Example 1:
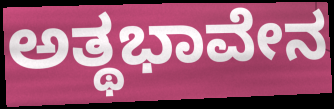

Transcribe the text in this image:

ಅತ್ಥಭಾವೇನ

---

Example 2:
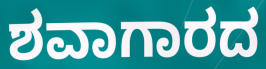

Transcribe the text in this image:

ಶವಾಗಾರದ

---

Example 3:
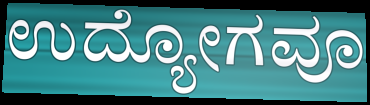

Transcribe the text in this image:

ಉದ್ಯೋಗವೂ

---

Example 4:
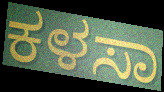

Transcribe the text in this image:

ಕಳಸಾ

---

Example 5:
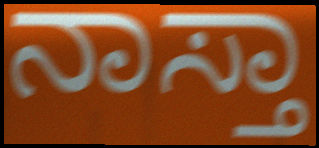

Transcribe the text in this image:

ನಾಸ್ತಾ